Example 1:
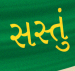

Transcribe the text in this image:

સસ્તું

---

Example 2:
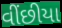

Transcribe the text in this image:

વીંછીયા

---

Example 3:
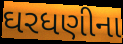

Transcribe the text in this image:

ઘરધણીના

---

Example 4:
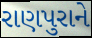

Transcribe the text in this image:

રાણપુરાને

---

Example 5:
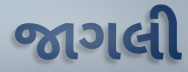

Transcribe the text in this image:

જાગલી